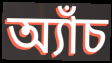
অ্যাঁচ